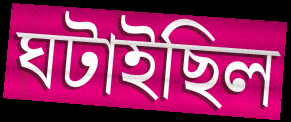
ঘটাইছিল